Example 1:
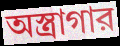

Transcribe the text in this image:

অস্ত্রাগার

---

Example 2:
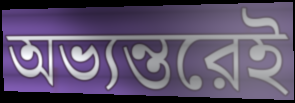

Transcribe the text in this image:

অভ্যন্তরেই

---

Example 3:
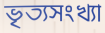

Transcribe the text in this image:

ভৃত্যসংখ্যা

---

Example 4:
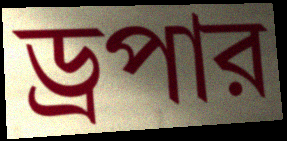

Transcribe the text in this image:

ড্রপার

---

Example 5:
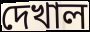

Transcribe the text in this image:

দেখাল